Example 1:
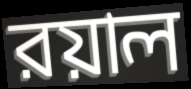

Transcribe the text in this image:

রয়াল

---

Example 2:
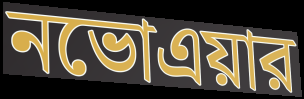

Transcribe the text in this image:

নভোএয়ার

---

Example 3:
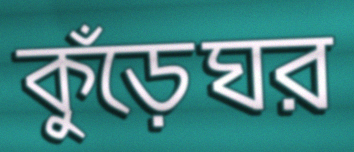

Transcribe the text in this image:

কুঁড়েঘর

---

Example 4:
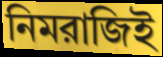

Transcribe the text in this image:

নিমরাজিই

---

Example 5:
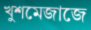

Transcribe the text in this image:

খুশমেজাজে